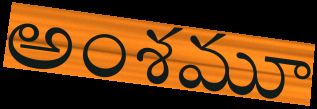
అంశమూ